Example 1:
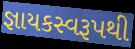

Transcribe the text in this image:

જ્ઞાયકસ્વરૂપથી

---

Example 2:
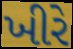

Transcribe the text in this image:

ખીરે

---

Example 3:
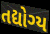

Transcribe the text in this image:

તદ્યોગ્ય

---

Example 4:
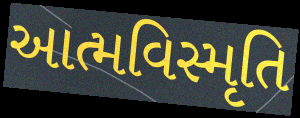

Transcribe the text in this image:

આત્મવિસ્મૃતિ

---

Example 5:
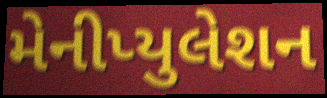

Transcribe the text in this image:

મેનીપ્યુલેશન